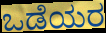
ಒಡೆಯರ